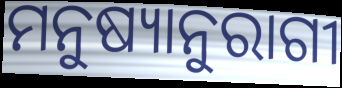
ମନୁଷ୍ୟାନୁରାଗୀ